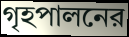
গৃহপালনের